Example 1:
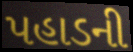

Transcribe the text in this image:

પહાડની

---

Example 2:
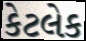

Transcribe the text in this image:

કેટલેક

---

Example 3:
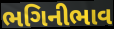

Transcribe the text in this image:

ભગિનીભાવ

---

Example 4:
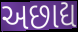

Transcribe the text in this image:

અછાદ્ય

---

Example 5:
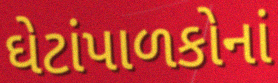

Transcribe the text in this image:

ઘેટાંપાળકોનાં